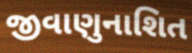
જીવાણુનાશિત